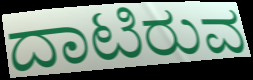
ದಾಟಿರುವ